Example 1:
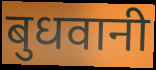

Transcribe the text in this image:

बुधवानी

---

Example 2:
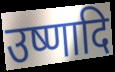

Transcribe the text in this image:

उष्णादि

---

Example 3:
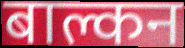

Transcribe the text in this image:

बाल्कन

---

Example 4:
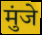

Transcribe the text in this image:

मुंजे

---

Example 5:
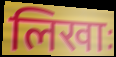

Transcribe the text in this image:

लिखाः